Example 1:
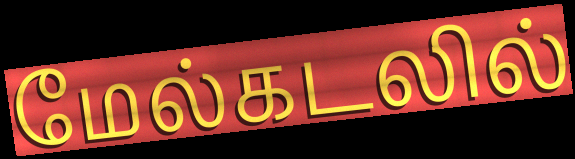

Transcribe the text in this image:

மேல்கடலில்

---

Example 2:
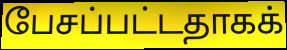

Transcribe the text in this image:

பேசப்பட்டதாகக்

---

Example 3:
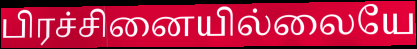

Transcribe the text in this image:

பிரச்சினையில்லையே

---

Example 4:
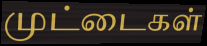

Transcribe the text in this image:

முட்டைகள்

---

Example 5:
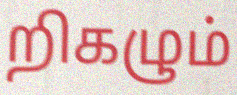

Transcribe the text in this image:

றிகழும்